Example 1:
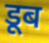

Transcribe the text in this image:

डूब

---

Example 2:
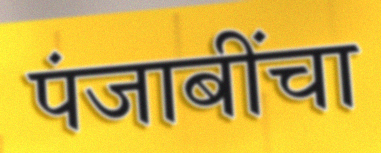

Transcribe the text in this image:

पंजाबींचा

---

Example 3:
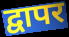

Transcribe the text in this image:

द्वापर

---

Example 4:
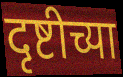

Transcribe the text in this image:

दृष्टीच्या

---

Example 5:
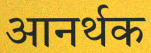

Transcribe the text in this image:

आनर्थक